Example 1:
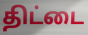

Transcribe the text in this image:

திட்டை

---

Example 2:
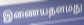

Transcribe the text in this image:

இணையதளமது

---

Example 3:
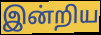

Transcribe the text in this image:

இன்றிய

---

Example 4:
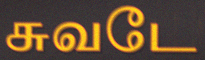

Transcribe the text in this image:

சுவடே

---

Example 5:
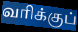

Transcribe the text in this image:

வரிக்குப்